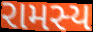
રામસ્ય